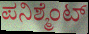
ಪನಿಶ್ಮೆಂಟ್